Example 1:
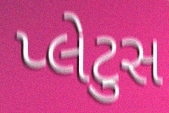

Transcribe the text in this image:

પ્લેટુસ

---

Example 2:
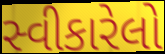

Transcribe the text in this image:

સ્વીકારેલો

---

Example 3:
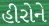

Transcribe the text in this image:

હીરોને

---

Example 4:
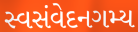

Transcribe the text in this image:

સ્વસંવેદનગમ્ય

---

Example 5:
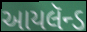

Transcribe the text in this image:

આયલૅન્ડ